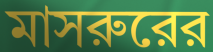
মাসরুরের